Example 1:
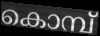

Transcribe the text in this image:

കൊമ്പ്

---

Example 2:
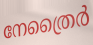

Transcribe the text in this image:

നേത്രൈർ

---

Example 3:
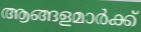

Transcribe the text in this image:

ആങ്ങളമാർക്ക്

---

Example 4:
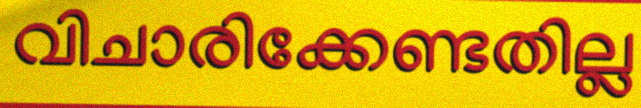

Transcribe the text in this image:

വിചാരിക്കേണ്ടതില്ല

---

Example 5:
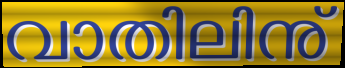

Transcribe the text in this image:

വാതിലിനു്